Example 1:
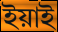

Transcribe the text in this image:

ইয়াই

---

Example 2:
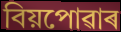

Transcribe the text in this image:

বিয়পোৱাৰ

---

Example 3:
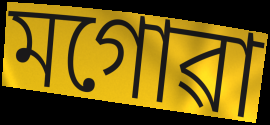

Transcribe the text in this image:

মগোৱা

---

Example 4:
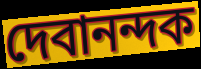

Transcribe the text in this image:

দেবানন্দক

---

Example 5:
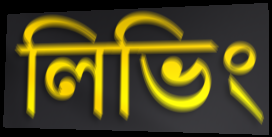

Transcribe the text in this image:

লিভিং